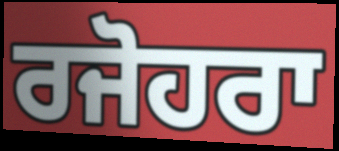
ਰਜੋਹਰਾ